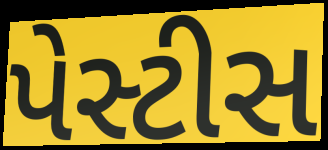
પેસ્ટીસ